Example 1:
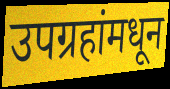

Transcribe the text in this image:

उपग्रहांमधून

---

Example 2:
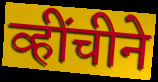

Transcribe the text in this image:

व्हींचीने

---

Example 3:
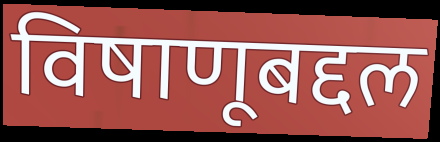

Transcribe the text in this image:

विषाणूबद्दल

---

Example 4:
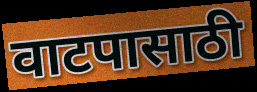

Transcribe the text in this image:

वाटपासाठी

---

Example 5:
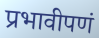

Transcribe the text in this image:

प्रभावीपणं